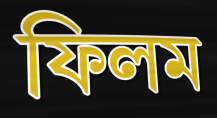
ফিলম